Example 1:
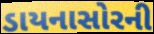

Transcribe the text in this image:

ડાયનાસોરની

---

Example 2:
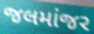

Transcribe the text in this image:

જલમાંજર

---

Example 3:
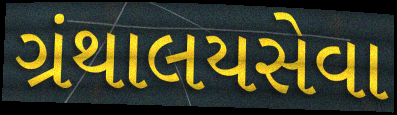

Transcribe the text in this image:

ગ્રંથાલયસેવા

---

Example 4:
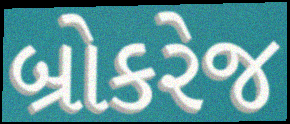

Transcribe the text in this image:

બ્રોકરેજ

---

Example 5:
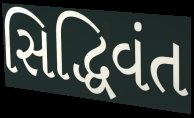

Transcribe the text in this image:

સિદ્ધિવંત